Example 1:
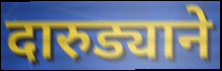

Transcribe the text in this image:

दारुड्याने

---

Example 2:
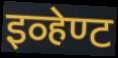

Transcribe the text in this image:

इव्हेण्ट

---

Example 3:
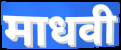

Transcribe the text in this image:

माधवी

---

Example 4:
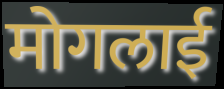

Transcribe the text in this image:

मोगलाई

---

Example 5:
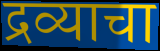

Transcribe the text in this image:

द्रव्याचा